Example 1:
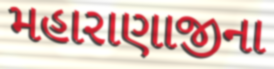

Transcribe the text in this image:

મહારાણાજીના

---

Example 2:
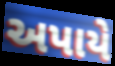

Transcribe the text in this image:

અપાયે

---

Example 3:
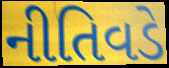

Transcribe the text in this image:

નીતિવડે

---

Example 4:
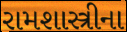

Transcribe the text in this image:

રામશાસ્ત્રીના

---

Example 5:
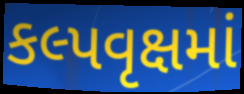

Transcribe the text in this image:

કલ્પવૃક્ષમાં